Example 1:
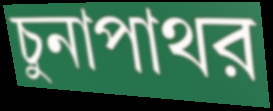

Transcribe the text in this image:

চুনাপাথর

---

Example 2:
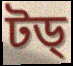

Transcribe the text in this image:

টড্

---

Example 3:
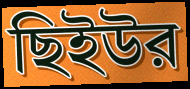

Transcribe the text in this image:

ছিইউর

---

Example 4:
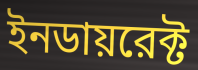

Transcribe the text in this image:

ইনডায়রেক্ট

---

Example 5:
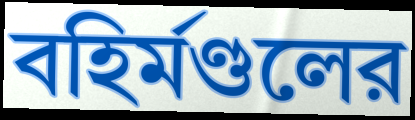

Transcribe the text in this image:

বহির্মণ্ডলের